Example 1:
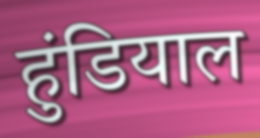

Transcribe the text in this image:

हुंडियाल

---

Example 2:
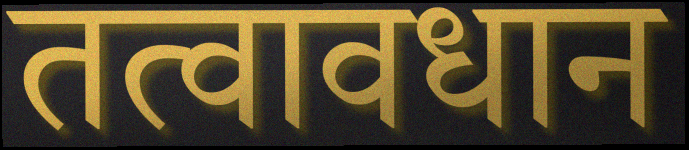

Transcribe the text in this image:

तत्वावधान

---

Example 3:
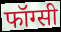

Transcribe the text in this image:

फॉग्सी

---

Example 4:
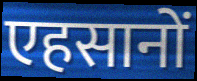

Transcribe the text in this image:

एहसानों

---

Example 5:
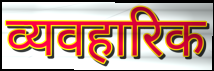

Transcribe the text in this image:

व्यवहारिक